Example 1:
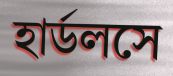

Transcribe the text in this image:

হার্ডলসে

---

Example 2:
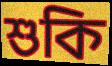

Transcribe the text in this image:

শুকি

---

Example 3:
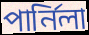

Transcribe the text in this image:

পার্নিলা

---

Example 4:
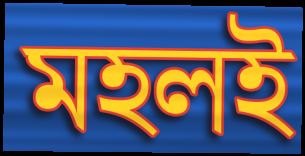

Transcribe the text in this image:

মহলই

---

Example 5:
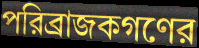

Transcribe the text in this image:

পরিব্রাজকগণের